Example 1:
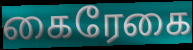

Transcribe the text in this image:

கைரேகை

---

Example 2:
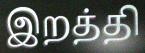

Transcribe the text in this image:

இறத்தி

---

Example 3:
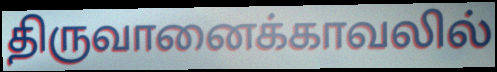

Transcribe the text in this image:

திருவானைக்காவலில்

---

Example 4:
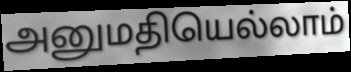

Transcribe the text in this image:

அனுமதியெல்லாம்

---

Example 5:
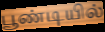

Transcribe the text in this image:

பூண்டியில்